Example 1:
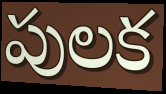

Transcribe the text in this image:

పులక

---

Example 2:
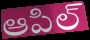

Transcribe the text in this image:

ఆపిల్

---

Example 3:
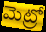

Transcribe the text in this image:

మెట్రో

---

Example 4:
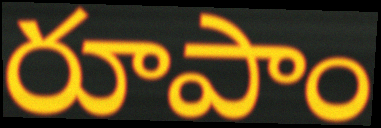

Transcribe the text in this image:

రూపాం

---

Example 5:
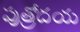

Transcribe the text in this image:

పుత్రోదయ